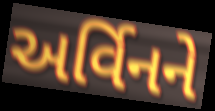
અર્વિનને